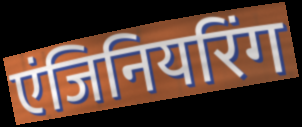
एंजिनियरिंग